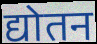
द्योतन